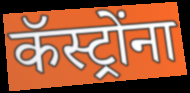
कॅस्ट्रोंना